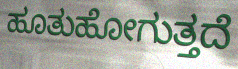
ಹೂತುಹೋಗುತ್ತದೆ